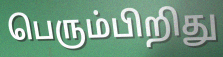
பெரும்பிறிது